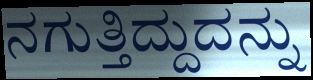
ನಗುತ್ತಿದ್ದುದನ್ನು